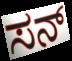
ಸನ್